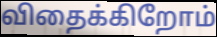
விதைக்கிறோம்